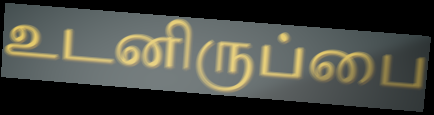
உடனிருப்பை